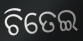
ଚିତେଇ